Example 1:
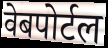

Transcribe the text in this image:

वेबपोर्टल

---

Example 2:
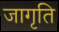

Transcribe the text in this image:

जागृति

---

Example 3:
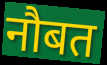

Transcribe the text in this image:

नौबत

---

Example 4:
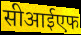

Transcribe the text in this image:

सीआईएफ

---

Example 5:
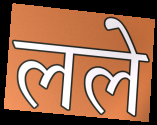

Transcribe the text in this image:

लले